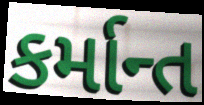
કર્માન્ત